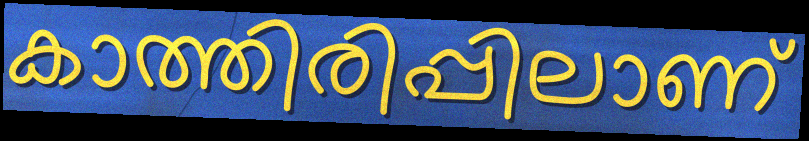
കാത്തിരിപ്പിലാണ്